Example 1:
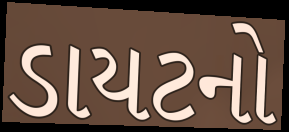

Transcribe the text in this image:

ડાયટનો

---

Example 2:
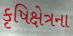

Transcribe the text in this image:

કૃષિક્ષેત્રના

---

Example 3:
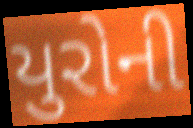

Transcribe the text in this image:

યુરોની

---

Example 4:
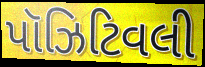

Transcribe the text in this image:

પૉઝિટિવલી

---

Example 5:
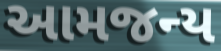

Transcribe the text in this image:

આમજન્ય